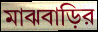
মাঝবাড়ির